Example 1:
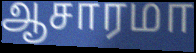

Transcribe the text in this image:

ஆசாரமா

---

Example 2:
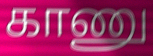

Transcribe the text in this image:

காணு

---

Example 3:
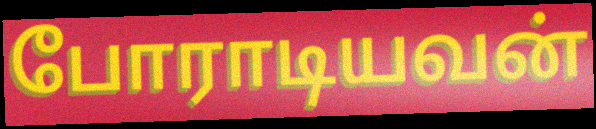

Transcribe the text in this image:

போராடியவன்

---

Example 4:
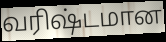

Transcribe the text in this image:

வரிஷ்டமான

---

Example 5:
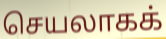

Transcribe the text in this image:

செயலாகக்